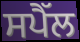
ਸਪੈੱਲ